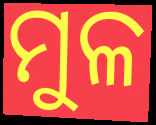
ମୁଳ